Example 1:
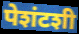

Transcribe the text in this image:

पेशंटशी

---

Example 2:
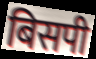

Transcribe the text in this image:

बिसपी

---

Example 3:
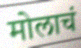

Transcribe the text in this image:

मोलाचं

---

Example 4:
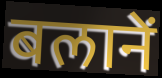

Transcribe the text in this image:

बलानें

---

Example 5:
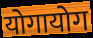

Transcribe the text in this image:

योगायोग